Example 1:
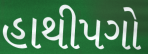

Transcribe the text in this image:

હાથીપગો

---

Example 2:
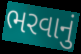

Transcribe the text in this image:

ભરવાનું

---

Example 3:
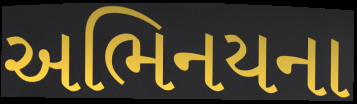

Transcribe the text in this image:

અભિનયના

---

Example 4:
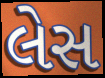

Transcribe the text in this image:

લેસ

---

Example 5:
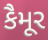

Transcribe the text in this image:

કૈમૂર